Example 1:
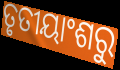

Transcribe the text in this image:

ତୃତୀୟାଂଶରୁ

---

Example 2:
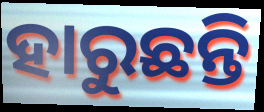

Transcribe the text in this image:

ହାରୁଛନ୍ତି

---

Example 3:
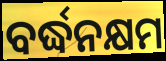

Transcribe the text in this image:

ବର୍ଦ୍ଧନକ୍ଷମ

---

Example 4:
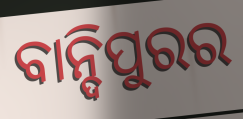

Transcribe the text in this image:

ବାନ୍ଦିପୁରର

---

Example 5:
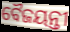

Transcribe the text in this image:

ବୈଜୟନ୍ତୀ